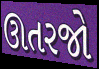
ઊતરજો